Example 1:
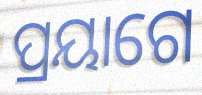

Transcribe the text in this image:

ପ୍ରୟାଗେ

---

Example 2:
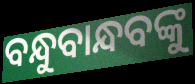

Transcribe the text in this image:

ବନ୍ଧୁବାନ୍ଧବଙ୍କୁ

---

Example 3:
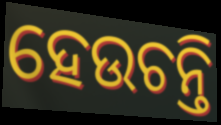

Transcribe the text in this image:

ହେଉଚନ୍ତି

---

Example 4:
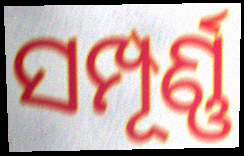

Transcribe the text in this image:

ସମ୍ପୂର୍ଣ୍ଣ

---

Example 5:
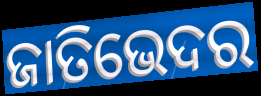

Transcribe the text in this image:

ଜାତିଭେଦର